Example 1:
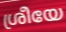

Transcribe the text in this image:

ശ്രീയേ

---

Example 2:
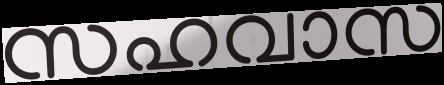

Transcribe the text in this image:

സഹവാസ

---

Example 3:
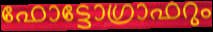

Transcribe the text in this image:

ഫോട്ടോഗ്രാഫറും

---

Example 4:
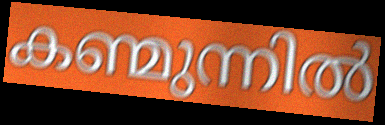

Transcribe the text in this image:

കണ്മുന്നിൽ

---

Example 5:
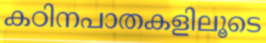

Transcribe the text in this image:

കഠിനപാതകളിലൂടെ